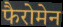
फैरोमेन